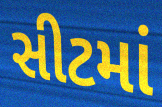
સીટમાં